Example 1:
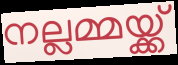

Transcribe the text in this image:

നല്ലമ്മയ്ക്ക്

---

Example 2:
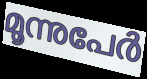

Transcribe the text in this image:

മൂന്നുപേർ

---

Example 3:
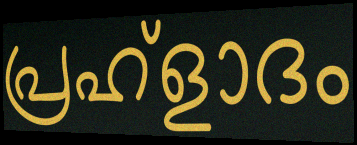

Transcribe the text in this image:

പ്രഹ്ളാദം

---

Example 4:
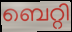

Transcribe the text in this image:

ബെറ്റി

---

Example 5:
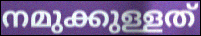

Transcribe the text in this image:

നമുക്കുള്ളത്